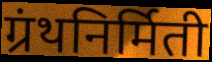
ग्रंथनिर्मिती